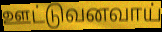
ஊட்டுவனவாய்